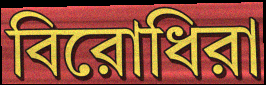
বিরোধিরা